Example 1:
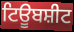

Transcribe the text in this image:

ਟਿਊਬਸ਼ੀਟ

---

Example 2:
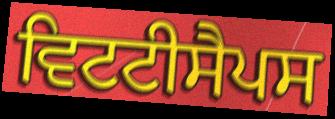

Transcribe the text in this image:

ਵਿਟਟੀਸੈਪਸ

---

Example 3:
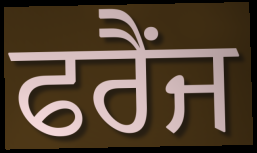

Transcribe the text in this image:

ਫਰੈਂਜ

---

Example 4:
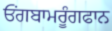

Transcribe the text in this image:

ਓਂਗਬਾਮਰੂੰਗਫਾਨ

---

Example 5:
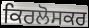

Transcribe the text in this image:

ਕਿਰਲੋਸਕਰ